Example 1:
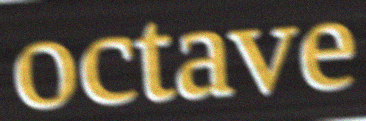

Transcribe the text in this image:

octave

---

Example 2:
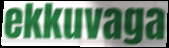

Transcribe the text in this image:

ekkuvaga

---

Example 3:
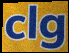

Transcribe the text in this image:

clg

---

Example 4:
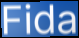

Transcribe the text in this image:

Fida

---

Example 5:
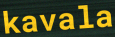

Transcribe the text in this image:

kavala